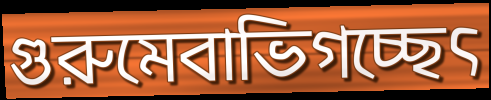
গুরুমেবাভিগচ্ছেৎ